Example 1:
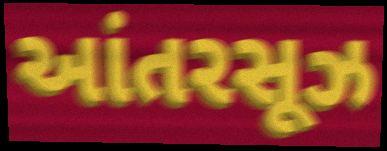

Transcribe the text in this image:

આંતરસૂઝ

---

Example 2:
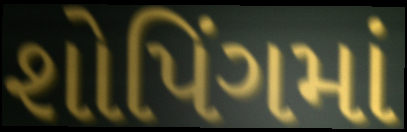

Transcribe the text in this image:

શોપિંગમાં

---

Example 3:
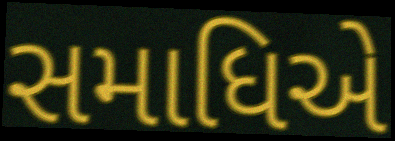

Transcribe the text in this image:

સમાધિએ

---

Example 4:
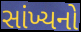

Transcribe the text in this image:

સાંખ્યનો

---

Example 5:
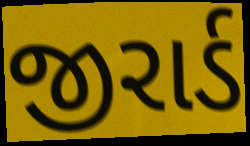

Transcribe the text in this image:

જીરાર્ડ